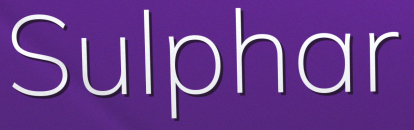
Sulphar